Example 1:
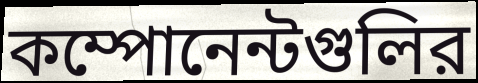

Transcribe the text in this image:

কম্পোনেন্টগুলির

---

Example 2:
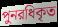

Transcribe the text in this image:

পুনরধিকৃত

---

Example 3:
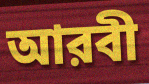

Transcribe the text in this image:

আরবী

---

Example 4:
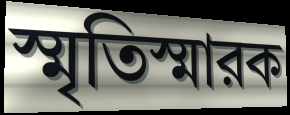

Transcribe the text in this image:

স্মৃতিস্মারক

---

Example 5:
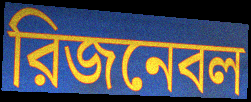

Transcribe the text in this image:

রিজনেবল